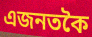
এজনতকৈ